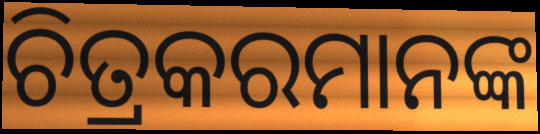
ଚିତ୍ରକରମାନଙ୍କ